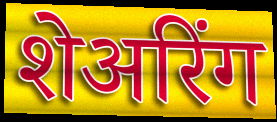
शेअरिंग